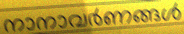
നാനാവർണങ്ങൾ